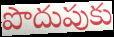
పొదుపుకు